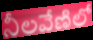
నీలవేణిలో